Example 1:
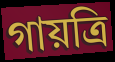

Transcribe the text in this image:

গায়ত্রি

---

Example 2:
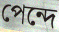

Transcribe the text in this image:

পেন্দে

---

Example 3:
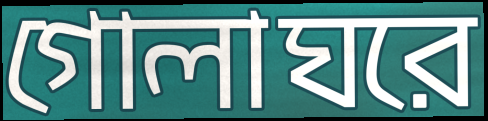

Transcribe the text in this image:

গোলাঘরে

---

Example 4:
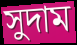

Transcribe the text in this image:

সুদাম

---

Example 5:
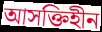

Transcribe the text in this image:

আসক্তিহীন